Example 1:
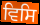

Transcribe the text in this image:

ਵਿਸਿ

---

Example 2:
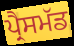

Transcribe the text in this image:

ਪ੍ਰੈਸਮੱਡ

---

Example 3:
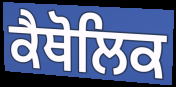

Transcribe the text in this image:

ਕੈਥੋਲਿਕ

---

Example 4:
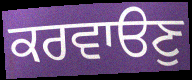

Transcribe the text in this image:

ਕਰਵਾੳਣੁ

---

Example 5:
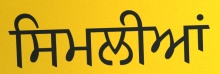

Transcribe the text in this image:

ਸਿਮਲੀਆਂ